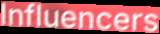
Influencers